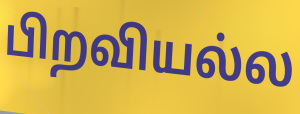
பிறவியல்ல